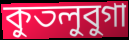
কুতলুবুগা